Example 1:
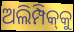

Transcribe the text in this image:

ଅଲିମ୍ପିକ୍‌କୁ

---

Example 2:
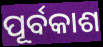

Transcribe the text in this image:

ପୂର୍ବକାଶ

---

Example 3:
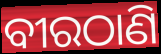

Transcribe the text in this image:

ବୀରଠାଣି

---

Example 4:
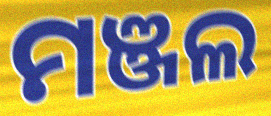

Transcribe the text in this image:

ମଞ୍ଜଲ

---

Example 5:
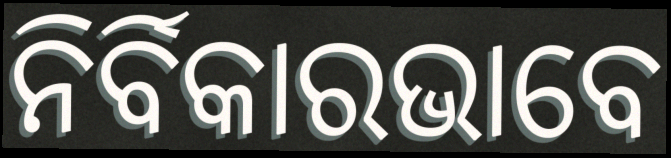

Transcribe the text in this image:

ନିର୍ବିକାରଭାବେ